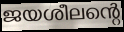
ജയശീലന്റെ